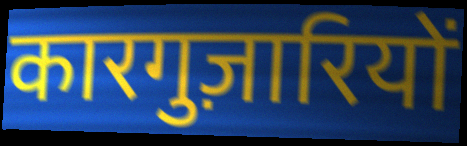
कारगुज़ारियों